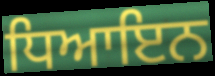
ਧਿਆਇਨ